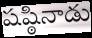
షష్ఠినాడు